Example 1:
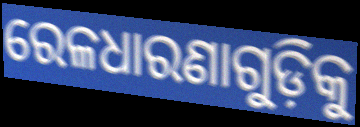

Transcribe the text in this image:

ରେଳଧାରଣାଗୁଡ଼ିକୁ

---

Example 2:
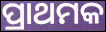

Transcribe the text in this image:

ପ୍ରାଥମକ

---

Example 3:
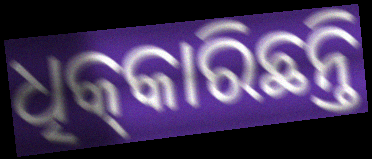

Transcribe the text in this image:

ଧିକ୍‌କାରିଛନ୍ତି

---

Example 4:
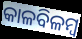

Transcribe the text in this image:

କାଳବିଳମ୍ବ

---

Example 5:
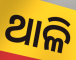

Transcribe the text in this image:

ଥାଳି